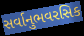
સર્વાનુભવરસિક